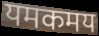
यमकमय